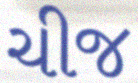
ચીજ